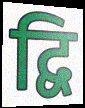
द्वि